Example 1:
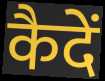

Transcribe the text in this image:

कैदें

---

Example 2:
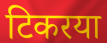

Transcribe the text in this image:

टिकरया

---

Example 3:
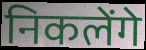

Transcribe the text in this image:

निकलेंगे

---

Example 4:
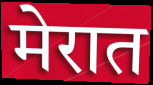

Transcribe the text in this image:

मेरात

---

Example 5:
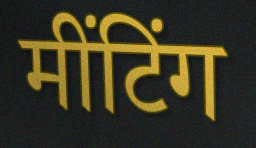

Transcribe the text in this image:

मींटिंग